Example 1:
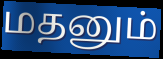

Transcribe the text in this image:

மதனும்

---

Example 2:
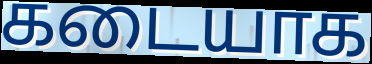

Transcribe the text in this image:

கடையாக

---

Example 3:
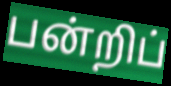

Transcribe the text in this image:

பன்றிப்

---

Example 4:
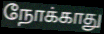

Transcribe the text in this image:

நோக்காது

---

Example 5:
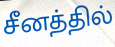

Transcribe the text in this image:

சீனத்தில்